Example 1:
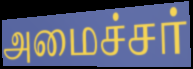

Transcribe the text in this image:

அமைச்சர்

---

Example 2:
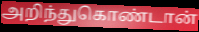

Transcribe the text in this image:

அறிந்துகொண்டான்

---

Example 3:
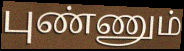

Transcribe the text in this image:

புண்ணும்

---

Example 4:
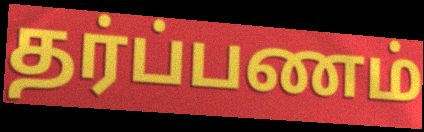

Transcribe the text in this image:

தர்ப்பணம்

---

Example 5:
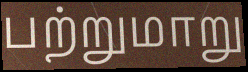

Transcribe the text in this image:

பற்றுமாறு